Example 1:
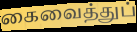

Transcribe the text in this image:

கைவைத்துப்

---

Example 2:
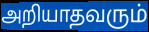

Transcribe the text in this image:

அறியாதவரும்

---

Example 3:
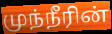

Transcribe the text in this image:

முந்நீரின்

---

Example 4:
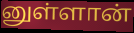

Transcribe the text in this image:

னுள்ளான்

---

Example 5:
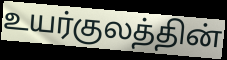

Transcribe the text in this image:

உயர்குலத்தின்